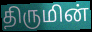
திருமின்